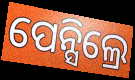
ପେନ୍ସିଲ୍ରେ